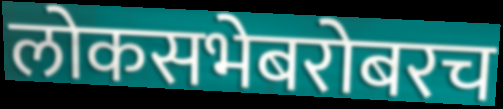
लोकसभेबरोबरच